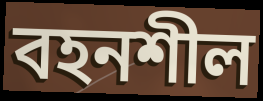
বহনশীল